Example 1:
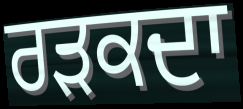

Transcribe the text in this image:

ਰੜਕਦਾ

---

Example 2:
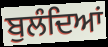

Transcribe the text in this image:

ਬੁਲੰਦਿਆਂ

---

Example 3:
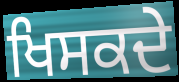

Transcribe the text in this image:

ਖਿਸਕਦੇ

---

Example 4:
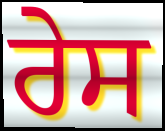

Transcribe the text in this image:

ਰੇਸ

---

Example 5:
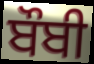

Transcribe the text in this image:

ਬੌਬੀ